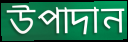
উপাদান